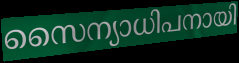
സൈന്യാധിപനായി